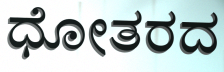
ಧೋತರದ